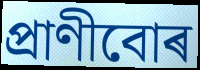
প্ৰাণীবোৰ